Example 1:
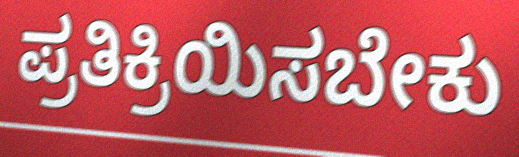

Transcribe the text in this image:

ಪ್ರತಿಕ್ರಿಯಿಸಬೇಕು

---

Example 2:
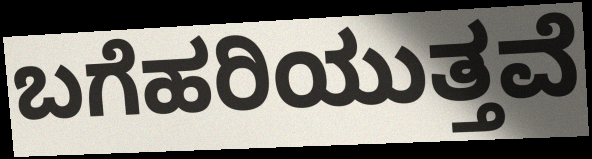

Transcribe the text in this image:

ಬಗೆಹರಿಯುತ್ತವೆ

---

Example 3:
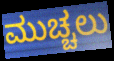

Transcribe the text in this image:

ಮುಚ್ಚಲು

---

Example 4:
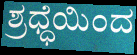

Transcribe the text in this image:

ಶ್ರಧ್ಧೆಯಿಂದ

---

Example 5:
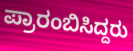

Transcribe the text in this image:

ಪ್ರಾರಂಬಿಸಿದ್ದರು